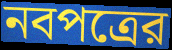
নবপত্রের